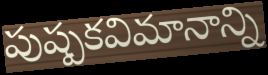
పుష్పకవిమానాన్ని